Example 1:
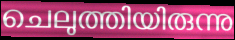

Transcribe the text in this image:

ചെലുത്തിയിരുന്നു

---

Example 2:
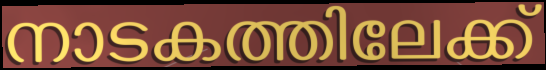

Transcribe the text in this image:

നാടകത്തിലേക്ക്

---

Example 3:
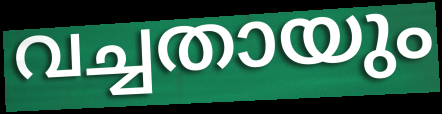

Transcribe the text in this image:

വച്ചതായും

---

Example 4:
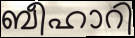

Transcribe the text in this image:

ബീഹാറി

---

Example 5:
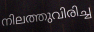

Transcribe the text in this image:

നിലത്തുവിരിച്ച